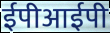
ईपीआईपी